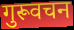
गुरूवचन